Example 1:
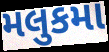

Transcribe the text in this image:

મલુકમા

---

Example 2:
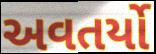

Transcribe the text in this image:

અવતર્યો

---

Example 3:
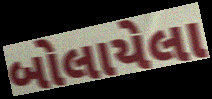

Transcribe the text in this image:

બોલાયેલા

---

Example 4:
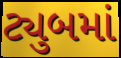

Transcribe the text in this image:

ટ્યુબમાં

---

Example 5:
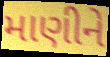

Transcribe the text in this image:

માણીને